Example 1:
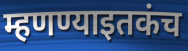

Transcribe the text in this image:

म्हणण्याइतकंच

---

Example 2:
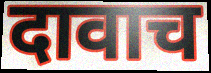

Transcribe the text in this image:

दावाच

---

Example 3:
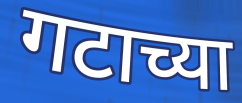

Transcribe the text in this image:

गटाच्या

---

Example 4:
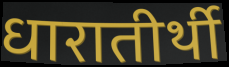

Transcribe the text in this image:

धारातीर्थी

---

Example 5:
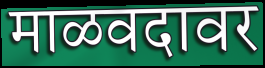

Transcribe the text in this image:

माळवदावर